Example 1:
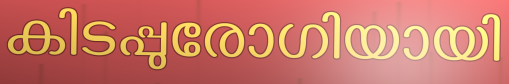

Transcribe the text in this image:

കിടപ്പുരോഗിയായി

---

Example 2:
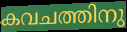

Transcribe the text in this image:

കവചത്തിനു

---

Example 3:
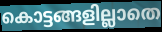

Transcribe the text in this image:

കൊട്ടങ്ങളില്ലാതെ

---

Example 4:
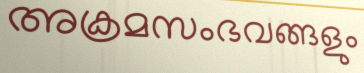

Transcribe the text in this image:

അക്രമസംഭവങ്ങളും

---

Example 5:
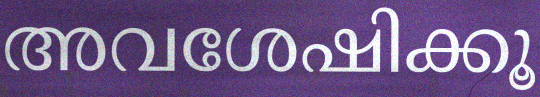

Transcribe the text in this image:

അവശേഷിക്കൂ